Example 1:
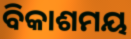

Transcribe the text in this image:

ବିକାଶମୟ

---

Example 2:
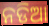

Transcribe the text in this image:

ନଡିଆ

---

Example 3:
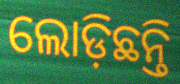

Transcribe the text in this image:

ଲୋଡ଼ିଛନ୍ତି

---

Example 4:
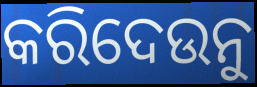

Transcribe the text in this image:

କରିଦେଉନୁ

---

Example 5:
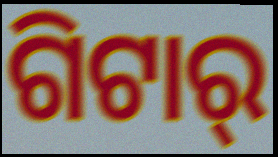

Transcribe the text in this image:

ଗିଟାର୍